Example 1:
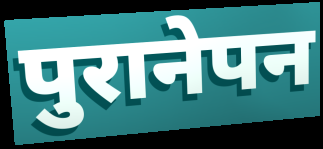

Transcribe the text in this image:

पुरानेपन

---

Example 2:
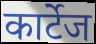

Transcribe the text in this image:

कार्टेज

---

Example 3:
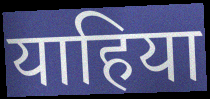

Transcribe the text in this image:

याहिया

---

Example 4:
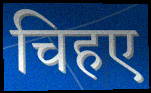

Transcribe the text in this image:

चिहए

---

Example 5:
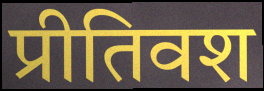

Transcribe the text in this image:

प्रीतिवश